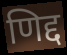
णिद्द